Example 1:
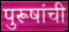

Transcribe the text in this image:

पुरूषांची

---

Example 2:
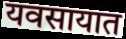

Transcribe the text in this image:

यवसायात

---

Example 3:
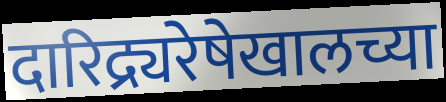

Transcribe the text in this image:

दारिद्र्यरेषेखालच्या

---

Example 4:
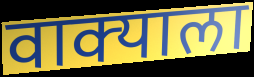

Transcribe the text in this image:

वाक्‍याला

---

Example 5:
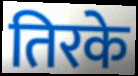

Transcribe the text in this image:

तिरके